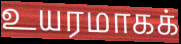
உயரமாகக்